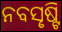
ନବସୃଷ୍ଟି